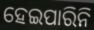
ହେଇପାରିନି